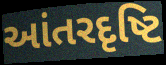
આંતરદૃષ્ટિ